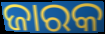
ଜାରକ